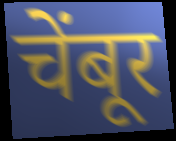
चेंबूर